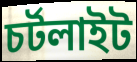
চর্টলাইট